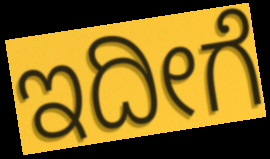
ಇದೀಗೆ